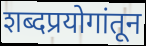
शब्दप्रयोगांतून